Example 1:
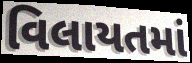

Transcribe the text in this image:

વિલાયતમાં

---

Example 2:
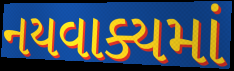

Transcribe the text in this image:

નયવાક્યમાં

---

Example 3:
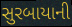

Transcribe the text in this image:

સુરબાયાની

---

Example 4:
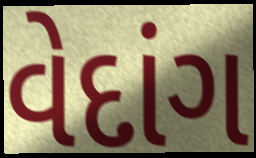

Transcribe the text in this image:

વેદાંગ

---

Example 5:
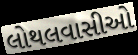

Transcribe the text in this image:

લોથલવાસીઓ